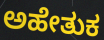
ಅಹೇತುಕ